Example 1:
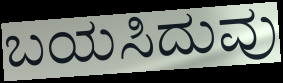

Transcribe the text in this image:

ಬಯಸಿದುವು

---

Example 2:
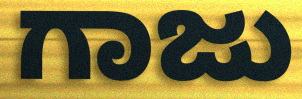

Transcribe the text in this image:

ಗಾಜು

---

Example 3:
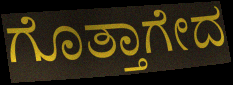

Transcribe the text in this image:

ಗೊತ್ತಾಗೇದ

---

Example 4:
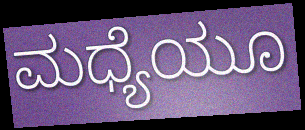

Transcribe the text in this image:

ಮಧ್ಯೆಯೂ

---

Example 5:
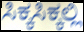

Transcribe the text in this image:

ಸಿಕ್ಕಸಿಕ್ಕಲ್ಲಿ